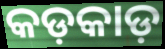
କଡ଼କାଡ଼